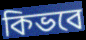
কিভবে